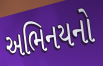
અભિનયનો